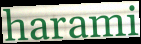
harami